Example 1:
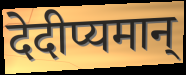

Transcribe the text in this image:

देदीप्यमान्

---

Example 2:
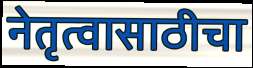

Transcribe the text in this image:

नेतृत्वासाठीचा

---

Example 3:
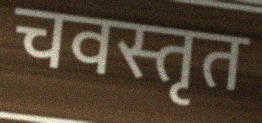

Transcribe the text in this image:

चवस्तृत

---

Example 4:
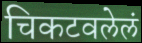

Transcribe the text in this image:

चिकटवलेलं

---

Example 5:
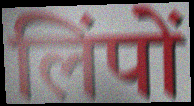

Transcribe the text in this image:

लिंपों